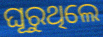
ଘୂରୁଥିଲେ